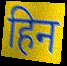
हिन